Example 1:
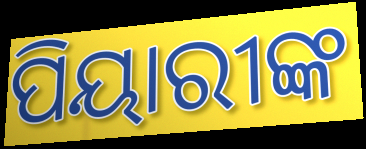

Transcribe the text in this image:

ପିୟାରୀଙ୍କ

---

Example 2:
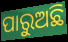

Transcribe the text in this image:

ପାରୁଅଛି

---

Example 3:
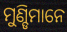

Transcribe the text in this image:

ମୁଣ୍ଡିମାନେ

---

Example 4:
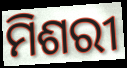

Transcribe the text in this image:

ମିଶରୀ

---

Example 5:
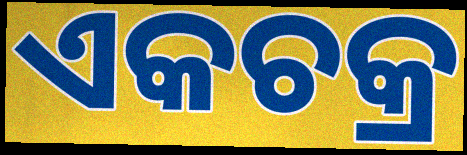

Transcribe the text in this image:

ଏକଚକ୍ର